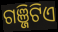
ଗଞ୍ଜିଟିଏ